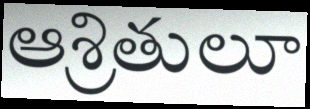
ఆశ్రితులూ